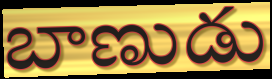
బాణుడు